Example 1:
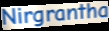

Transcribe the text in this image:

Nirgrantha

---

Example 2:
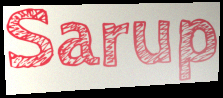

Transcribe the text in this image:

Sarup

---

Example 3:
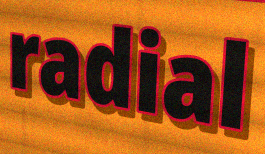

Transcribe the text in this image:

radial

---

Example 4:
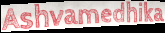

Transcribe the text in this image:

Ashvamedhika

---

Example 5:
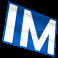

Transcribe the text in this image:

IM